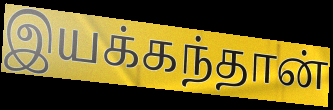
இயக்கந்தான்